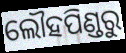
ଲୌହପିଣ୍ଡରୁ